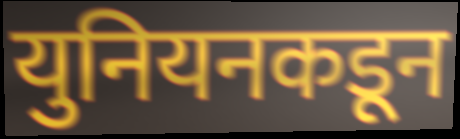
युनियनकडून